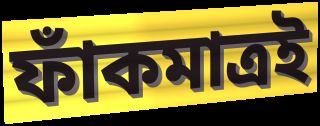
ফাঁকমাত্রই